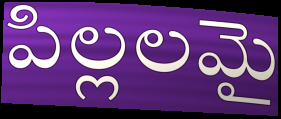
పిల్లలమై